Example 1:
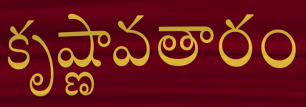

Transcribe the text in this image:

కృష్ణావతారం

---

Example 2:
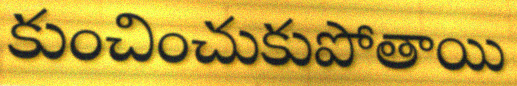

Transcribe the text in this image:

కుంచించుకుపోతాయి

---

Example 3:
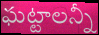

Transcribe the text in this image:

ఘట్టాలన్నీ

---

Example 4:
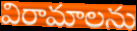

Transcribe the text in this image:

విరామాలను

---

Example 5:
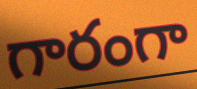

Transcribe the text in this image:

గారంగా